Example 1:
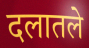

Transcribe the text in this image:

दलातले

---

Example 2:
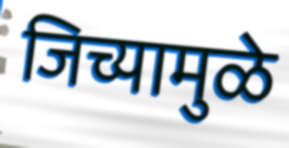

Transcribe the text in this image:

जिच्यामुळे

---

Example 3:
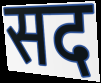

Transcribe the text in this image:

सद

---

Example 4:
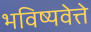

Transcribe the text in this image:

भविष्यवेत्ते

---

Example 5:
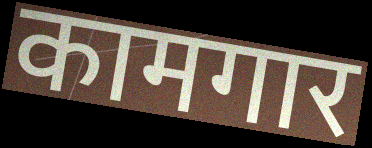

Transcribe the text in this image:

कामगार